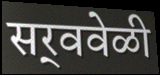
सर्ववेळी